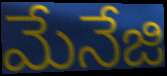
మేనేజి